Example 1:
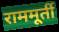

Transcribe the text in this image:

राममूर्ती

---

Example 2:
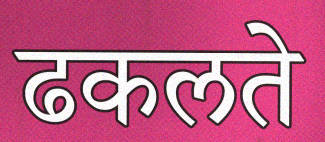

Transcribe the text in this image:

ढकलते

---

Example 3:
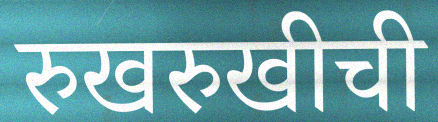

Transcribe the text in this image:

रुखरुखीची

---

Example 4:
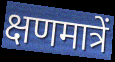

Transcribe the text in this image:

क्षणमात्रें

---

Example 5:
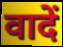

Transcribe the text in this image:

वादें